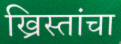
ख्रिस्तांचा